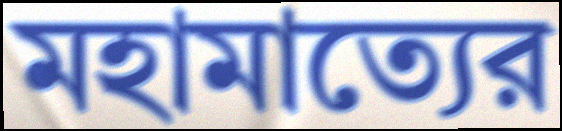
মহামাত্যের